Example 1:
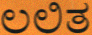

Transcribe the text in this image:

ಲಲಿತ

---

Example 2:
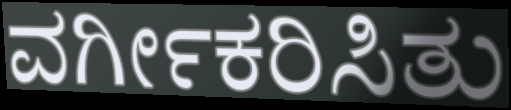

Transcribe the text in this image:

ವರ್ಗೀಕರಿಸಿತು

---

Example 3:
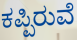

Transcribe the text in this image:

ಕಪ್ಪಿರುವೆ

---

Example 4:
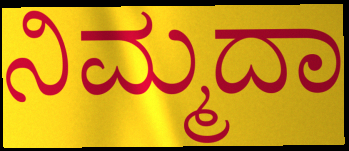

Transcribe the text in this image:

ನಿಮ್ಮದಾ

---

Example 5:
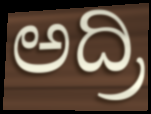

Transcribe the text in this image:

ಅದ್ರಿ